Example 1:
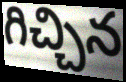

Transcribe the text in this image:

గిచ్చిన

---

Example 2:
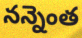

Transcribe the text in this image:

నన్నెంత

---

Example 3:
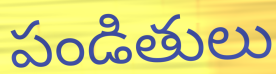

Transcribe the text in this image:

పండితులు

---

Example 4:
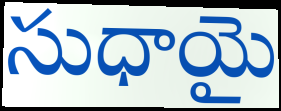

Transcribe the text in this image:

సుధాయై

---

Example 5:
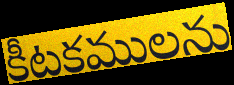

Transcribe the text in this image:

కీటకములను